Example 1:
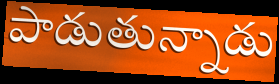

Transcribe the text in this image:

పాడుతున్నాడు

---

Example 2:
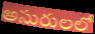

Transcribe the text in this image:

అసురులలో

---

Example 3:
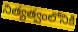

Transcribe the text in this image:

నిత్యత్వంలోనికి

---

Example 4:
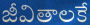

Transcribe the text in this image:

జీవితాలకే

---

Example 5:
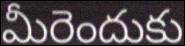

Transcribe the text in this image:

మీరెందుకు